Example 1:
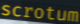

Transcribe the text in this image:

scrotum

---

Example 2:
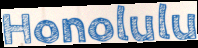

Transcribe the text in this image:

Honolulu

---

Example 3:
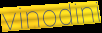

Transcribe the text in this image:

vinodini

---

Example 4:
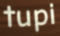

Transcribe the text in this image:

tupi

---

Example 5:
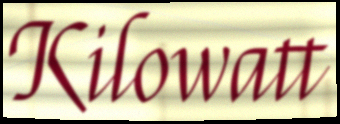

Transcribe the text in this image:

Kilowatt